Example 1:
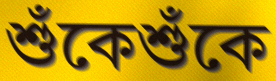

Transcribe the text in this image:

শুঁকেশুঁকে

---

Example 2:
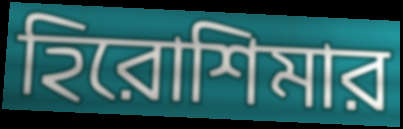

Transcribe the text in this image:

হিরোশিমার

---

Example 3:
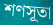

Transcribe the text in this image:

শণসূতা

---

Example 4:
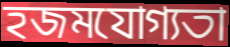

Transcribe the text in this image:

হজমযোগ্যতা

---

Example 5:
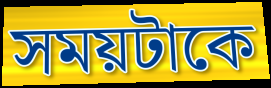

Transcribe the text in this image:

সময়টাকে